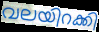
വലയിറക്കി